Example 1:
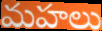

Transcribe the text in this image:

మహలు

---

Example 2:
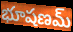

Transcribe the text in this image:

భూషణమ్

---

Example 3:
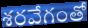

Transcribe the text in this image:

శరవేగంతో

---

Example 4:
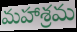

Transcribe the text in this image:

మహాశ్రమ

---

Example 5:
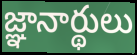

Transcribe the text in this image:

జ్ఞానార్థులు